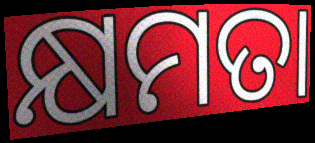
କ୍ଷମତା